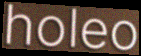
holeo